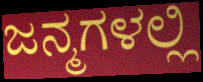
ಜನ್ಮಗಳಲ್ಲಿ